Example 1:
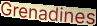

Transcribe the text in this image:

Grenadines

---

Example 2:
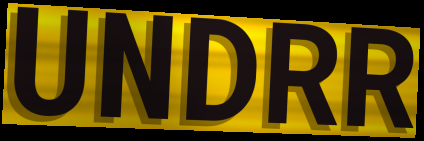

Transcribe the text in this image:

UNDRR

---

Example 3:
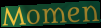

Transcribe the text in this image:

Momen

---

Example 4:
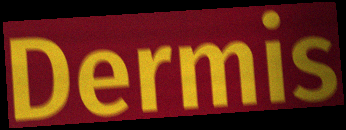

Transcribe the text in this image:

Dermis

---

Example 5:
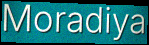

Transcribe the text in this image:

Moradiya